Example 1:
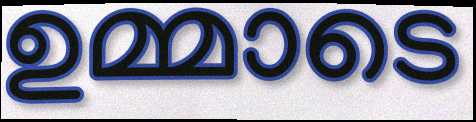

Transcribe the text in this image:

ഉമ്മാടെ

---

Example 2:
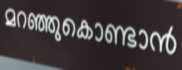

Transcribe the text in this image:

മറഞ്ഞുകൊണ്ടാൻ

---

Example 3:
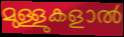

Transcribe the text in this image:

മുള്ളുകളാൽ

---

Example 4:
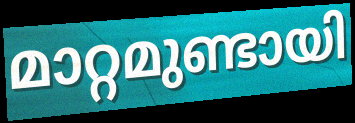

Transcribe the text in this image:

മാറ്റമുണ്ടായി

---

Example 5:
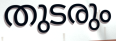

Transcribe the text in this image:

തുടരും